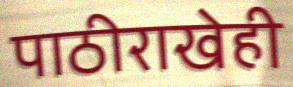
पाठीराखेही